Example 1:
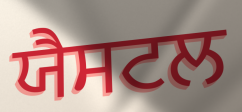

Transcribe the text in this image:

ਯੈਸਟਲ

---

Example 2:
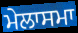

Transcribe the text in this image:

ਮੇਲਾਸਮਾ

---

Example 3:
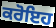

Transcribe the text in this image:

ਕਰੋਇਹ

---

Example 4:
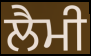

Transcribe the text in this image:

ਲੈਮੀ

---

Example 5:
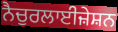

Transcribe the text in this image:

ਨੈਚੁਰਲਾਈਜ਼ੇਸ਼ਨ